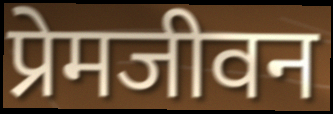
प्रेमजीवन